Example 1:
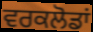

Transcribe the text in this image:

ਵਰਕਲੋਡਾਂ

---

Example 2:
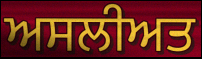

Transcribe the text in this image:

ਅਸਲੀਅਤ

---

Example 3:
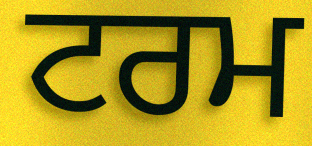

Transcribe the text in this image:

ਟਰਮ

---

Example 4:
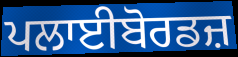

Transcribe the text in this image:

ਪਲਾਈਬੋਰਡਜ਼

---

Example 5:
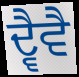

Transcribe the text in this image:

ਦ੍ਵੈਵੈ